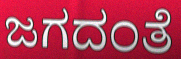
ಜಗದಂತೆ